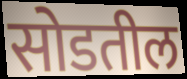
सोडतील